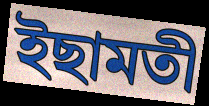
ইছামতী